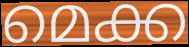
മെക്ക